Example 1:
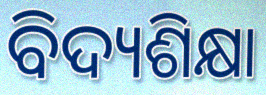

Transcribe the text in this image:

ବିଦ୍ୟଶିକ୍ଷା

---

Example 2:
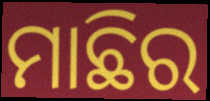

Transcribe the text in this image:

ମାଛିର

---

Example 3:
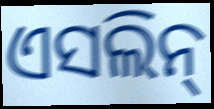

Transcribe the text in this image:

ଏସଲିନ୍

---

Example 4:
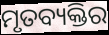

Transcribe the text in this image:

ମୃତବ୍ୟକ୍ତିର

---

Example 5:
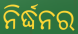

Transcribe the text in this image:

ନିର୍ଦ୍ଧନର